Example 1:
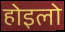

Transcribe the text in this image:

होइलो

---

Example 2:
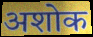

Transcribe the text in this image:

अशोक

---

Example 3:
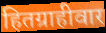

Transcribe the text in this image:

हितग्राहीवार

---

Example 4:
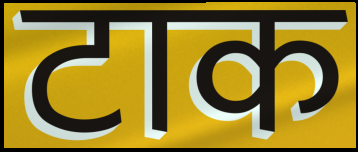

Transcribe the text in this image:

टाक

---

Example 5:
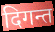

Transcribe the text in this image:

दिगन्त